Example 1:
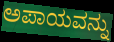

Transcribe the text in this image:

ಅಪಾಯವನ್ನು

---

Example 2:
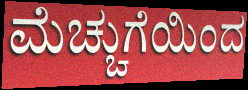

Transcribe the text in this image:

ಮೆಚ್ಚುಗೆಯಿಂದ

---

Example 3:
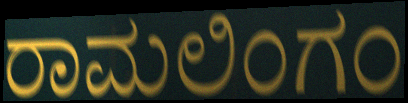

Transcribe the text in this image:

ರಾಮಲಿಂಗಂ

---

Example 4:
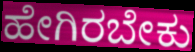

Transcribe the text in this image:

ಹೇಗಿರಬೇಕು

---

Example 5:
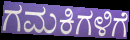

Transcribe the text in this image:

ಗಮಕಿಗಳಿಗೆ